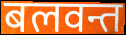
बलवन्‍त